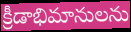
క్రీడాభిమానులను